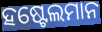
ହଷ୍ଟେଲମାନ